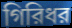
গিরিধর